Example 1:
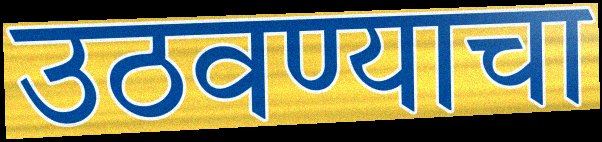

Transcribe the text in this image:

उठवण्याचा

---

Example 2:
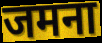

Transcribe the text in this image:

जमना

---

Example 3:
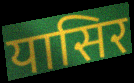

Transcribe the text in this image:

यासिर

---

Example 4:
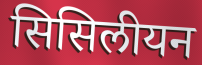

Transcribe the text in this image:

सिसिलीयन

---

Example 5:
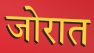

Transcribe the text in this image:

जोरात